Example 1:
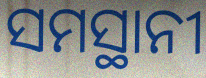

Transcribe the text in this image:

ସମସ୍ଥାନୀ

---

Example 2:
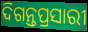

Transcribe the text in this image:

ଦିଗନ୍ତପ୍ରସାରୀ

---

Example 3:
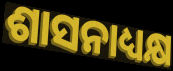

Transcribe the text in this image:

ଶାସନାଧ୍ୟକ୍ଷ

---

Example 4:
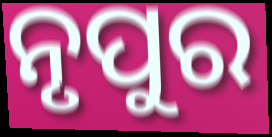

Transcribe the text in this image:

ନୃପୁର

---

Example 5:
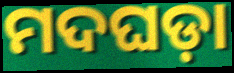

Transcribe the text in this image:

ମଦଘଡ଼ା